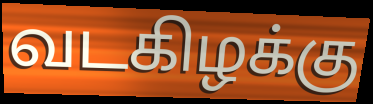
வடகிழக்கு